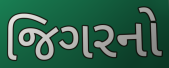
જિગરનો